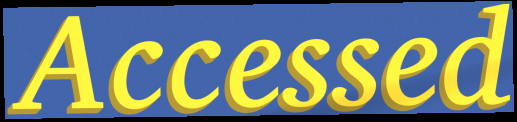
Accessed